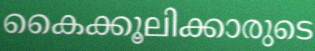
കൈക്കൂലിക്കാരുടെ